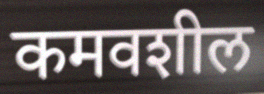
कमवशील